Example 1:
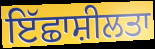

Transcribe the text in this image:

ਇੱਛਾਸ਼ੀਲਤਾ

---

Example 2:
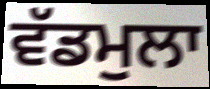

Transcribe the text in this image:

ਵੱਡਮੁਲਾ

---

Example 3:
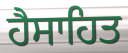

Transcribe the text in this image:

ਹੈਸਾਹਿਤ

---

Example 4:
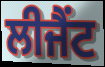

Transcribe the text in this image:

ਲੀਜੈਂਟ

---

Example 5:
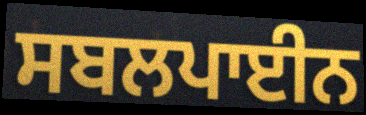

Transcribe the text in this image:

ਸਬਲਪਾਈਨ